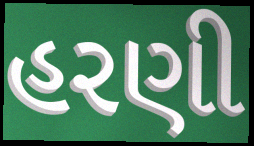
હરણી